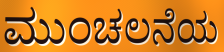
ಮುಂಚಲನೆಯ